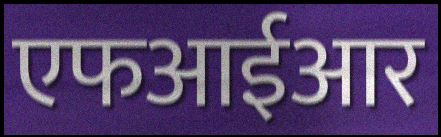
एफआईआर